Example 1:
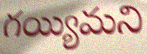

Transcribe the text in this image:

గయ్యిమని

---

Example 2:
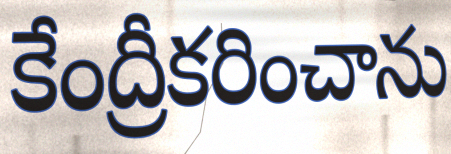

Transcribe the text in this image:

కేంద్రీకరించాను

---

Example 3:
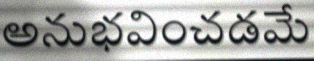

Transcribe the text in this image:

అనుభవించడమే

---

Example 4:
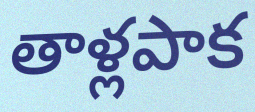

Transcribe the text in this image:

తాళ్లపాక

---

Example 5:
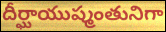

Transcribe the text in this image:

దీర్ఘాయుష్మంతునిగా